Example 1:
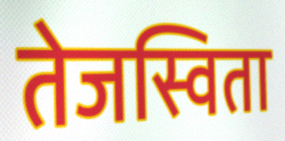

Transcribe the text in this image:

तेजस्विता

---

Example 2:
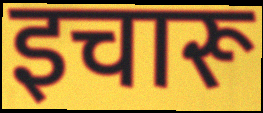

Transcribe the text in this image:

इचारू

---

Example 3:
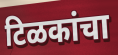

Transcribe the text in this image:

टिळकांचा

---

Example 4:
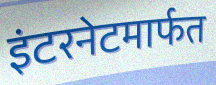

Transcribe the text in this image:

इंटरनेटमार्फत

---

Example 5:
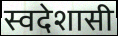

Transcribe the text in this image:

स्वदेशासी